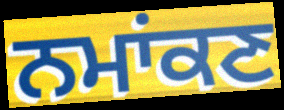
ਨਮਾਂਕਣ